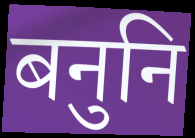
बनुनि